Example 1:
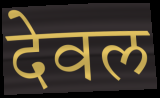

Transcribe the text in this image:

देवल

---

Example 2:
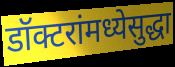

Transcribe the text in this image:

डॉक्टरांमध्येसुद्धा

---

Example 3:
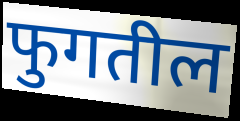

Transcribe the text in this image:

फुगतील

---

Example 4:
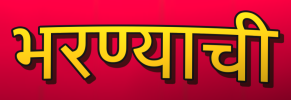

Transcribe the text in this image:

भरण्याची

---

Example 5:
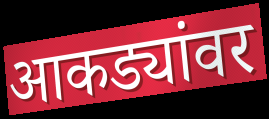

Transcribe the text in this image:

आकड्यांवर